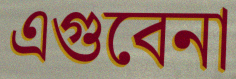
এগুবেনা